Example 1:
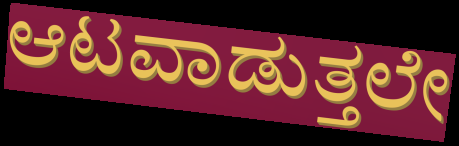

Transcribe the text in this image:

ಆಟವಾಡುತ್ತಲೇ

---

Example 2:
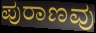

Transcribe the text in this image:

ಪುರಾಣವು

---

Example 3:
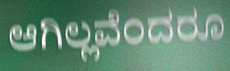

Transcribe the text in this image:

ಆಗಿಲ್ಲವೆಂದರೂ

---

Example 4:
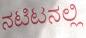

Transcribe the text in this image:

ನಟಿಟನಲ್ಲಿ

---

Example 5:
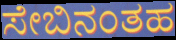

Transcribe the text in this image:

ಸೇಬಿನಂತಹ